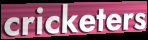
cricketers